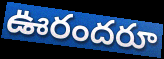
ఊరందరూ